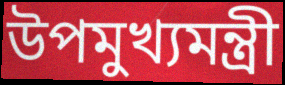
উপমুখ্যমন্ত্রী